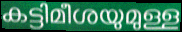
കട്ടിമീശയുമുള്ള